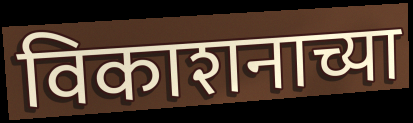
विकाशनाच्या